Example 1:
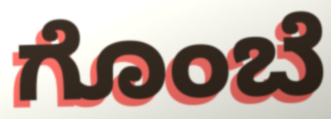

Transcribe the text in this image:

ಗೊಂಬೆ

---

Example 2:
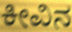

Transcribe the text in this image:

ಕೀವಿನ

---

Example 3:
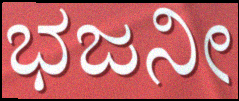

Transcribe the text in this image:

ಭಜನೀ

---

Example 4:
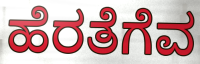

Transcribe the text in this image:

ಹೆರತೆಗೆವ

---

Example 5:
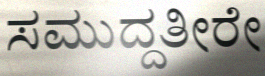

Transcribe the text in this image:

ಸಮುದ್ದತೀರೇ